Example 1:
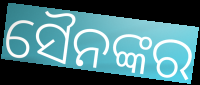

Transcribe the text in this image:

ସୈନଙ୍କର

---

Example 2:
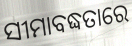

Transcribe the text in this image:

ସୀମାବଦ୍ଧତାରେ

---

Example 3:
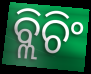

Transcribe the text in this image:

ବ୍ଲିଚିଂ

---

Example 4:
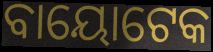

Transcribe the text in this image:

ବାୟୋଟେକ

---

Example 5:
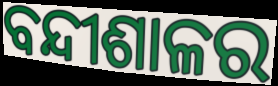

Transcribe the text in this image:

ବନ୍ଦୀଶାଳର